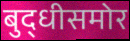
बुद्धीसमोर